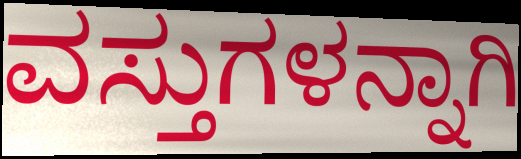
ವಸ್ತುಗಳನ್ನಾಗಿ